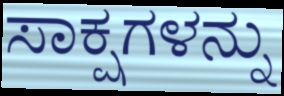
ಸಾಕ್ಷಗಳನ್ನು